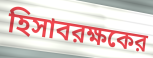
হিসাবরক্ষকের